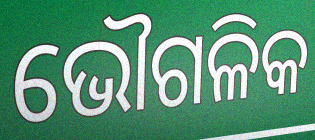
ଭୌଗଳିକ